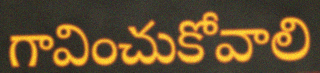
గావించుకోవాలి